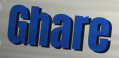
Ghare